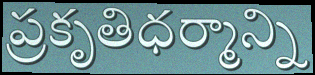
ప్రకృతిధర్మాన్ని